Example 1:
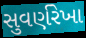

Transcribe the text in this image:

સુવર્ણરેખા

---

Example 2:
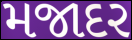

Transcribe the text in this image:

મજાદર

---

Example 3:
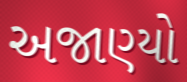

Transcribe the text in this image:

અજાણ્યો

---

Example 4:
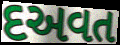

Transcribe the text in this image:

દઅવત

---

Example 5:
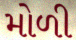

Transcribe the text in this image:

મોળી